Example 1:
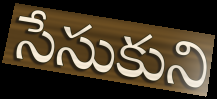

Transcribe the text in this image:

సేసుకుని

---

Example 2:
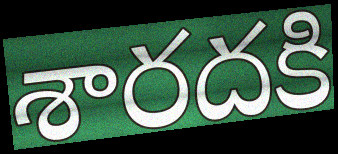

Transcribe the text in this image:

శారదకి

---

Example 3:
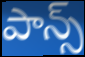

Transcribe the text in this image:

పాన్స్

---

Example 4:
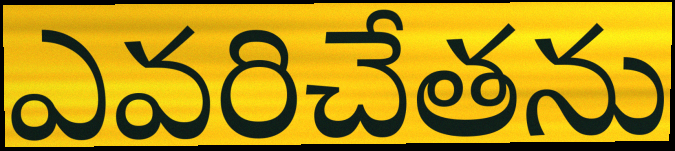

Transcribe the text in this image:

ఎవరిచేతను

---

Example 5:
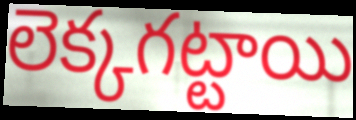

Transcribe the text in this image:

లెక్కగట్టాయి